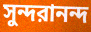
সুন্দরানন্দ